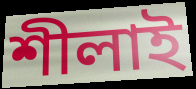
শীলাই